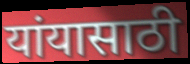
यांयासाठी